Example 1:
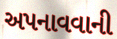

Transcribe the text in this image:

અપનાવવાની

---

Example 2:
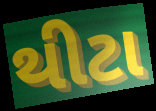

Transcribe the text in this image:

થીટા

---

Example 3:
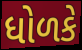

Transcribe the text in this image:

ધોળકે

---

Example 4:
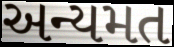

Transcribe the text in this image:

અન્યમત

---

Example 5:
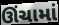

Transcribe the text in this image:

ઊંચામાં